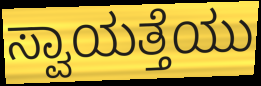
ಸ್ವಾಯತ್ತೆಯು